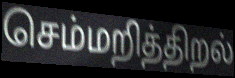
செம்மறித்திறல்